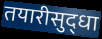
तयारीसुद्धा